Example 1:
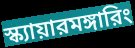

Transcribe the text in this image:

স্ক্যায়ারমঙ্গারিং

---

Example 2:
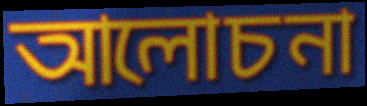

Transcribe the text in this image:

আলোচনা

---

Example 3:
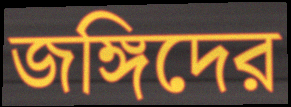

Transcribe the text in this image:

জঙ্গিদের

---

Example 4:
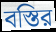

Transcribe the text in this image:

বস্তির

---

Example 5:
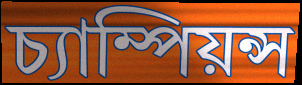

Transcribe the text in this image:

চ্যাম্পিয়ন্স